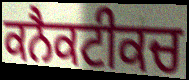
ਕਨੈਕਟੀਕਚ